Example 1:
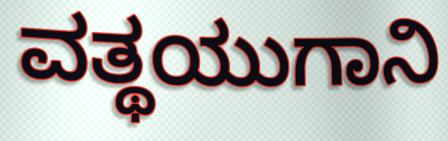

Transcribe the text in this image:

ವತ್ಥಯುಗಾನಿ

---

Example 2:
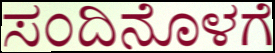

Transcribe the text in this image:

ಸಂದಿನೊಳಗೆ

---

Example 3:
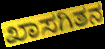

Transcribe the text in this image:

ಖಾಸಗಿತನ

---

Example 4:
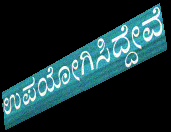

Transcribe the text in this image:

ಉಪಯೋಗಿಸಿದ್ದೇವೆ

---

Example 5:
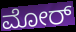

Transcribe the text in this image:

ಮೋರ್